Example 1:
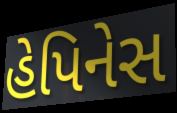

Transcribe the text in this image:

હેપિનેસ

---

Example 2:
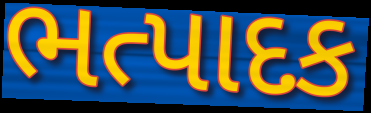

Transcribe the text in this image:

ભત્પાદક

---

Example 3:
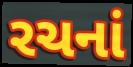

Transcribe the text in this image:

રચનાં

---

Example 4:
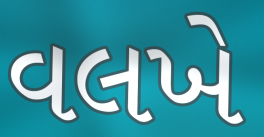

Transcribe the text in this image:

વલખે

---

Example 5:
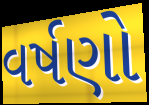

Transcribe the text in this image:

વર્ષણો